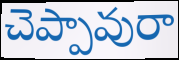
చెప్పావురా